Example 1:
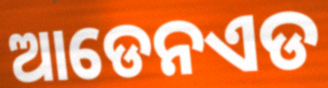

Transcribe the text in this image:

ଆଡେନଏଡ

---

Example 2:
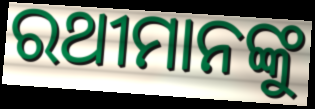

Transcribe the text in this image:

ରଥୀମାନଙ୍କୁ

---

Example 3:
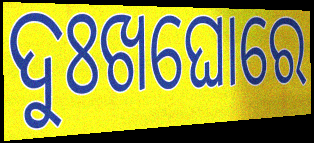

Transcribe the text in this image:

ଦୁଃଖଘୋରେ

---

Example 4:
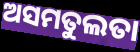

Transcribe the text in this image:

ଅସମତୁଲତା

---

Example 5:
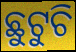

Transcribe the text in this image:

ଛୁଟୁଚି